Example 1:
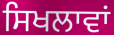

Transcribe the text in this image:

ਸਿਖਲਾਵਾਂ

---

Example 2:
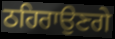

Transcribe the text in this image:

ਠਹਿਰਾਉਣਗੇ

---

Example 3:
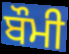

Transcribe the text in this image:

ਬੌਮੀ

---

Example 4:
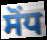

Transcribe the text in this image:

ਸੋਂਧ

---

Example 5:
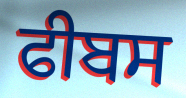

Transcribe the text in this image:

ਫੀਬਸ